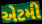
એટમી